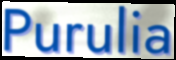
Purulia